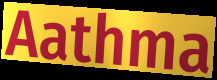
Aathma